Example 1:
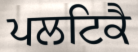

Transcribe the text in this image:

ਪਲਟਿਕੈ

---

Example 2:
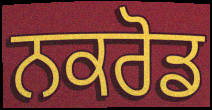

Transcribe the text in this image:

ਨਕਰੋਡ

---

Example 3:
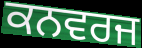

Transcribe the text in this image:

ਕਨਵਰਜ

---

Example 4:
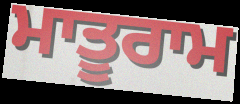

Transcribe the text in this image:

ਮਾਤੂਰਾਮ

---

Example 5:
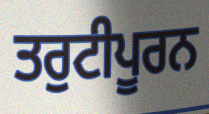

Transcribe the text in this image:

ਤਰੁਟੀਪੂਰਨ